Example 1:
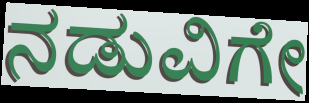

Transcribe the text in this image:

ನಡುವಿಗೇ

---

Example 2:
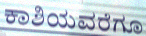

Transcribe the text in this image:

ಕಾಶಿಯವರೆಗೂ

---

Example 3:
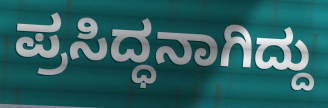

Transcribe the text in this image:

ಪ್ರಸಿದ್ಧನಾಗಿದ್ದು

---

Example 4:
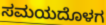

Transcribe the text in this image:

ಸಮಯದೊಳಗ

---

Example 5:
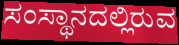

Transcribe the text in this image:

ಸಂಸ್ಥಾನದಲ್ಲಿರುವ